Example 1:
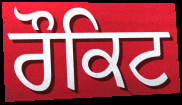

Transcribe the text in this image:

ਰੌਕਿਟ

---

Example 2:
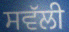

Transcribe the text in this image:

ਸਵੱਲੀ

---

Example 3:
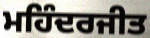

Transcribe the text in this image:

ਮਹਿੰਦਰਜੀਤ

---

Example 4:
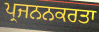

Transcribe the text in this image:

ਪ੍ਰਜਨਨਕਰਤਾ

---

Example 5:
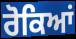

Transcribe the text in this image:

ਰੋਕਿਆਂ